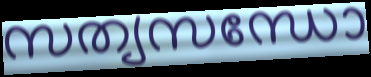
സത്യസന്ധോ